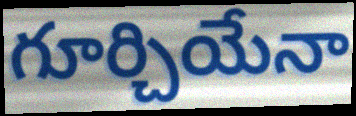
గూర్చియేనా